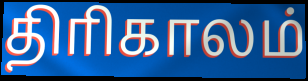
திரிகாலம்